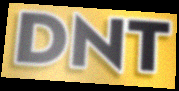
DNT